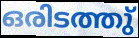
ഒരിടത്തു്